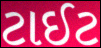
ટાઈટ